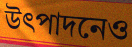
উৎপাদনেও